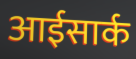
आईसार्क